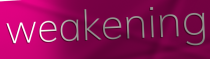
weakening